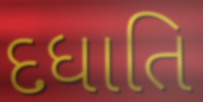
દધાતિ